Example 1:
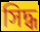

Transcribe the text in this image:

সিদ্ধ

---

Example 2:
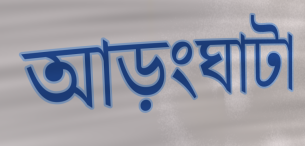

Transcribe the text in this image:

আড়ংঘাটা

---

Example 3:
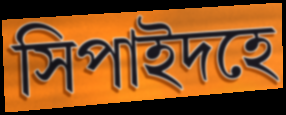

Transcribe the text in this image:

সিপাইদহে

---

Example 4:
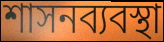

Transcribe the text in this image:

শাসনব্যবস্থা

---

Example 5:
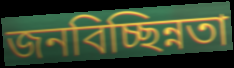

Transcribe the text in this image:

জনবিচ্ছিন্নতা